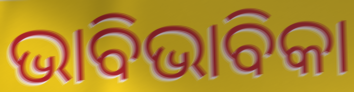
ଭାବିଭାବିକା